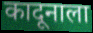
कादूनाला